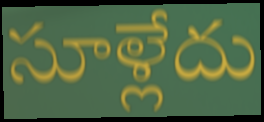
సూళ్లేదు